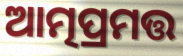
ଆତ୍ମପ୍ରମତ୍ତ